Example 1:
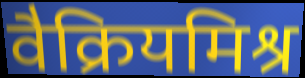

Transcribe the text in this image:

वैक्रियमिश्र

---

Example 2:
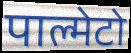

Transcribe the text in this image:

पाल्मेटो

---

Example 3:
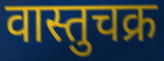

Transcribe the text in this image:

वास्तुचक्र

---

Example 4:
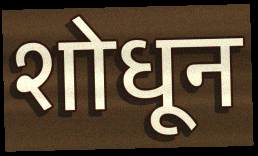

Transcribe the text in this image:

शोधून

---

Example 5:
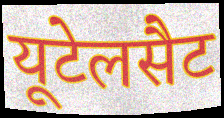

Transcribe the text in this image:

यूटेलसैट